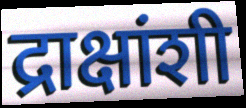
द्राक्षांशी